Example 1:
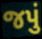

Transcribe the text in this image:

જપું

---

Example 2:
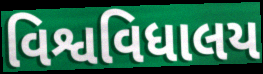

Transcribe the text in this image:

વિશ્વવિધાલય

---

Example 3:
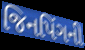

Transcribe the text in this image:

જિનપિંગની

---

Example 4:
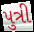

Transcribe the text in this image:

પુત્રી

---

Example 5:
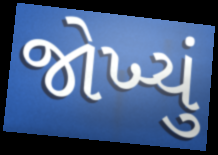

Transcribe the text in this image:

જોખ્યું